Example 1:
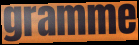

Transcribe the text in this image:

gramme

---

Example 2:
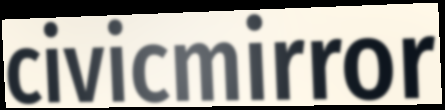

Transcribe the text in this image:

civicmirror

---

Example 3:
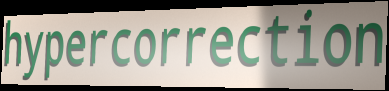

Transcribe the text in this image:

hypercorrection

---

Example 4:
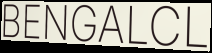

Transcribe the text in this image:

BENGALCL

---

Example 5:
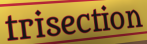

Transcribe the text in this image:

trisection